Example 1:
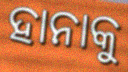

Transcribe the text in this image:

ହାନାକୁ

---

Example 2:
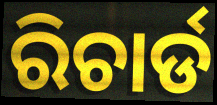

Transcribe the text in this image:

ରିଚାର୍ଡ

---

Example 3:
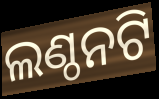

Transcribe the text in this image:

ଲଣ୍ଠନଟି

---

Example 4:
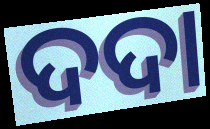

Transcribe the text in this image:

ଦଦା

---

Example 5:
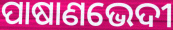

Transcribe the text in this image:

ପାଷାଣଭେଦୀ